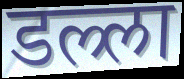
डल्ला